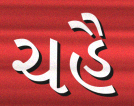
ચહૈ